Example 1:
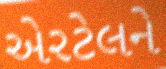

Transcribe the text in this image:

એરટેલને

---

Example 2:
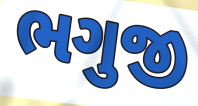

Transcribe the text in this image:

ભગુજી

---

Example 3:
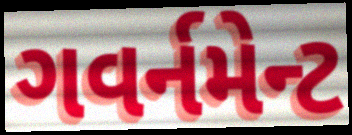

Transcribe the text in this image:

ગવર્નમેન્ટ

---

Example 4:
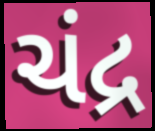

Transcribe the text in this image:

ચંદ્ર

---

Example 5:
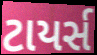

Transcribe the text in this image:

ટાયર્સ